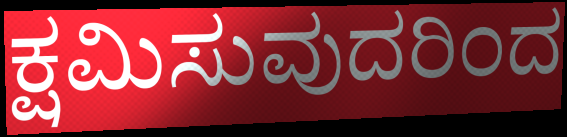
ಕ್ಷಮಿಸುವುದರಿಂದ